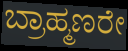
ಬ್ರಾಹ್ಮಣರೇ